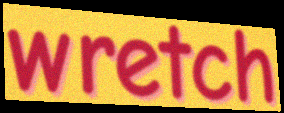
wretch